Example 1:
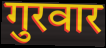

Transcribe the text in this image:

गुरवार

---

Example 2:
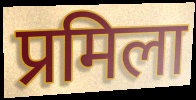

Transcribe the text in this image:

प्रमिला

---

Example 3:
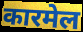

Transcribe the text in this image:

कारमेल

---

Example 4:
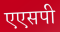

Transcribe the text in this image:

एएसपी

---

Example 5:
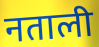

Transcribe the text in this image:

नताली